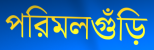
পরিমলগুঁড়ি